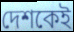
দেশকেই